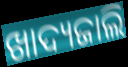
ଖାଦ୍ୟଜାଲି